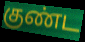
குண்ட